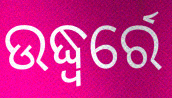
ଉଦ୍ଧ୍ୱର୍ରେ